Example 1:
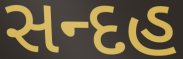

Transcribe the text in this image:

સન્દહ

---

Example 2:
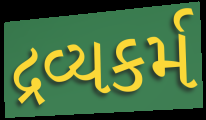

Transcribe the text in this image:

દ્રવ્યકર્મ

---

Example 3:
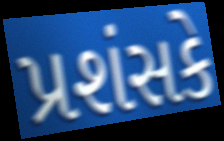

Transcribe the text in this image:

પ્રશંસકે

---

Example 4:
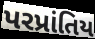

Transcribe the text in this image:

પરપ્રાંતિય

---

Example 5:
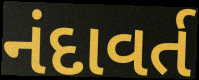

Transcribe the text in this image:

નંદાવર્ત